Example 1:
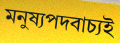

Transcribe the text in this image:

মনুষ্যপদবাচ্যই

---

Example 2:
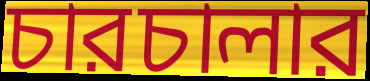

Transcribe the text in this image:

চারচালার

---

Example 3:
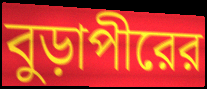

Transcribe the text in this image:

বুড়াপীরের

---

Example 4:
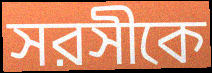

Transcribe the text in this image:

সরসীকে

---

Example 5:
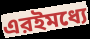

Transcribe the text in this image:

এরইমধ্যে